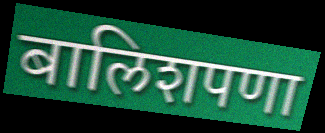
बालिशपणा